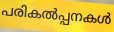
പരികൽപ്പനകൾ